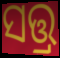
ସତ୍ତ୍ର